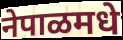
नेपाळमधे